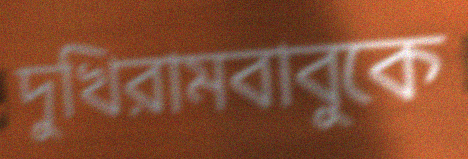
দুখিরামবাবুকে